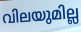
വിലയുമില്ല